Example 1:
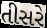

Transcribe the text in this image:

તીસરે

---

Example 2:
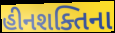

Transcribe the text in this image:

હીનશક્તિના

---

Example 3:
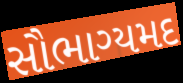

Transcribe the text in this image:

સૌભાગ્યમદ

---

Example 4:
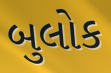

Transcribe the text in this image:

બુલોક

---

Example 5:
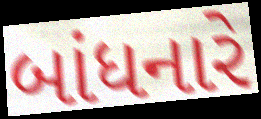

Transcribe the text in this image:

બાંધનારે